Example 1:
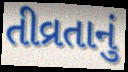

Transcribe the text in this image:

તીવ્રતાનું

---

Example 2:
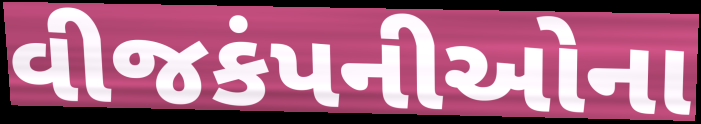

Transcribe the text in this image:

વીજકંપનીઓના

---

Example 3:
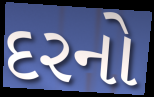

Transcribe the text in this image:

દરનો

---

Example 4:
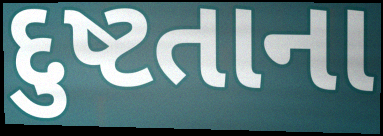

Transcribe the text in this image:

દુષ્ટતાના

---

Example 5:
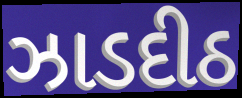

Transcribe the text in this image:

ઝાડદીઠ